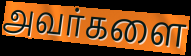
அவர்களை